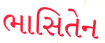
ભાસિતેન